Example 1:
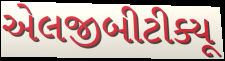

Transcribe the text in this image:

એલજીબીટીક્યૂ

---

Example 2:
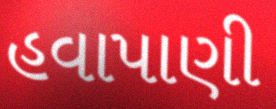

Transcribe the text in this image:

હવાપાણી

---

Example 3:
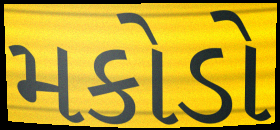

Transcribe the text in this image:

મકોડો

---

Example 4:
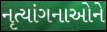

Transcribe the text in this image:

નૃત્યાંગનાઓને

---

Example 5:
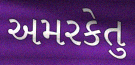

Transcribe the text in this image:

અમરકેતુ